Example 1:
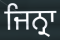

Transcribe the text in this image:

ਜਿਨ੍ਰਾ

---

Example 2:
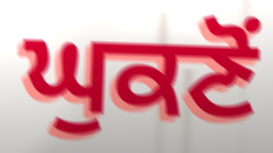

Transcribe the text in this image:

ਘੁਕਣੋਂ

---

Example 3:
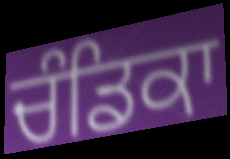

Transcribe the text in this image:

ਚੰਡਿਕਾ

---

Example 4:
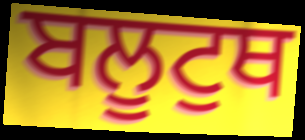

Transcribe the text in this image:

ਬਲੂਟੁਥ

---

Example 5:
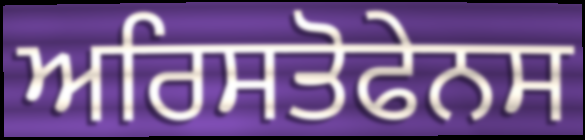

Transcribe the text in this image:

ਅਰਿਸਤੋਫੇਨਸ